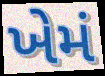
ખેમં